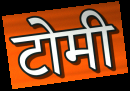
टोमी